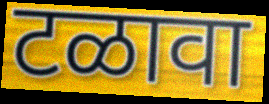
टळावा